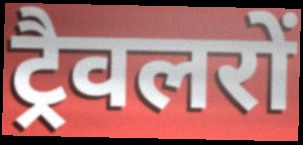
ट्रैवलरों